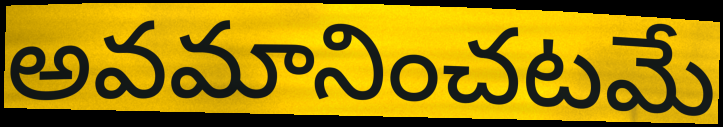
అవమానించటమే